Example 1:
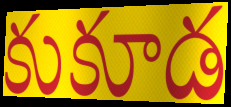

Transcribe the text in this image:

కుకూడ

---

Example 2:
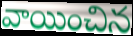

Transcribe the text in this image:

వాయించిన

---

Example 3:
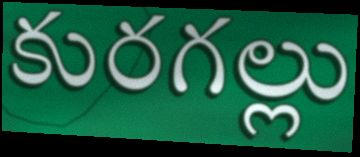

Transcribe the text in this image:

కురగల్లు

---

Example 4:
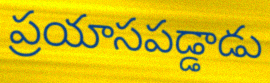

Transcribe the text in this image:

ప్రయాసపడ్డాడు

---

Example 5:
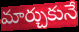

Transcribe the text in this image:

మార్చుకునే